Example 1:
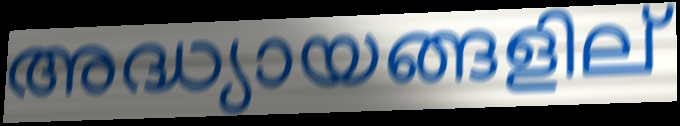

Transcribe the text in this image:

അദ്ധ്യായങ്ങളില്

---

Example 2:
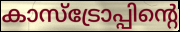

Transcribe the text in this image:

കാസ്ട്രോപ്പിന്റെ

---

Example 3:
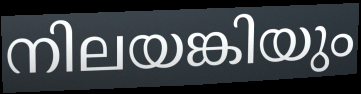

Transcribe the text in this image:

നിലയങ്കിയും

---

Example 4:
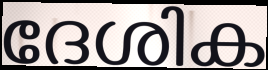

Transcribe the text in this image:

ദേശിക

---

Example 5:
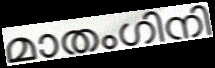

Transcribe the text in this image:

മാതംഗിനി